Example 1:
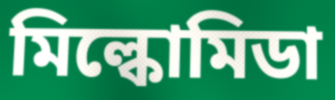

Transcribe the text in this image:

মিল্কোমিডা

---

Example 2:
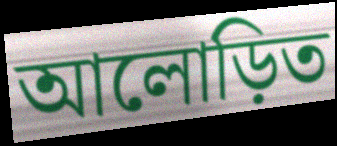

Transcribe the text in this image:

আলোড়িত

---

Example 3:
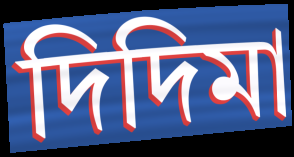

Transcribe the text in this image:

দিদিমা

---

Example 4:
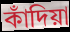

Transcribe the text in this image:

কাঁদিয়া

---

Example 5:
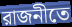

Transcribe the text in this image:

রাজনীতে